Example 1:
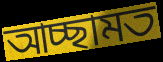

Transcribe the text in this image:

আচ্ছামত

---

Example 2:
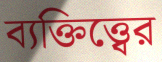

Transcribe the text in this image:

ব্যক্তিত্ত্বের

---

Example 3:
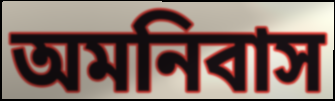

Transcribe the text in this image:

অমনিবাস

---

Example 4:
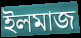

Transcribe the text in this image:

ইলমাজ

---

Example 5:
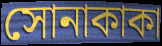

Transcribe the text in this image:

সোনাকাকা